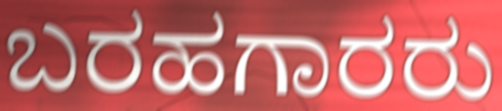
ಬರಹಗಾರರು